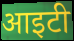
आइटी